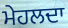
ਮੇਹਲਦਾ